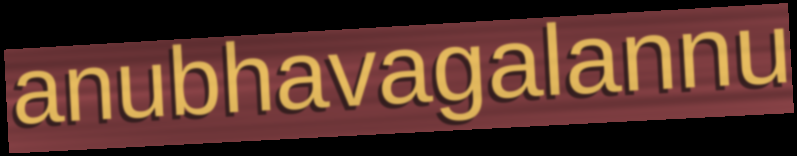
anubhavagalannu